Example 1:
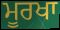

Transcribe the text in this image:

ਮੂਰਖਾ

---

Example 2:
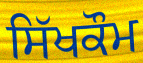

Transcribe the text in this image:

ਸਿੱਖਕੌਮ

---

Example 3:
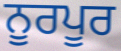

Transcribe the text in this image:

ਨੂਰਪੂਰ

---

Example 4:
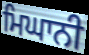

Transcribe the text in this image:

ਮਿਘਾਨੀ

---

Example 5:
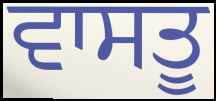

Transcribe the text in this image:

ਵਾਸਤੂ